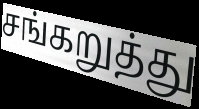
சங்கறுத்து